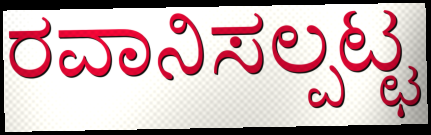
ರವಾನಿಸಲ್ಪಟ್ಟ